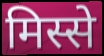
मिस्से